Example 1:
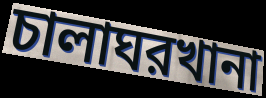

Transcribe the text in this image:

চালাঘরখানা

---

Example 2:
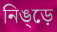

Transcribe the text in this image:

নিঙ্ড়ে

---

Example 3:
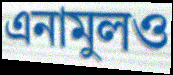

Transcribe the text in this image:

এনামুলও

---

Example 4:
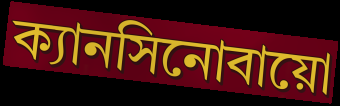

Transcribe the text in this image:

ক্যানসিনোবায়ো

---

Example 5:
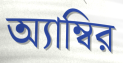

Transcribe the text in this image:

অ্যাম্বির